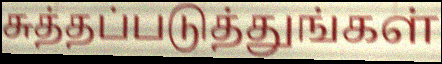
சுத்தப்படுத்துங்கள்